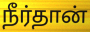
நீர்தான்